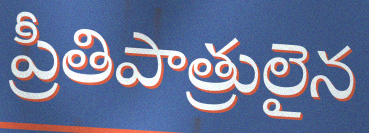
ప్రీతిపాత్రులైన